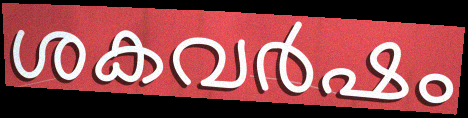
ശകവർഷം